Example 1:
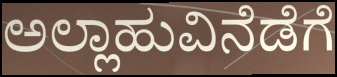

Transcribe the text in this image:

ಅಲ್ಲಾಹುವಿನೆಡೆಗೆ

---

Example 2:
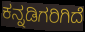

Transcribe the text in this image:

ಕನ್ನಡಿಗರಿಗಿದೆ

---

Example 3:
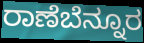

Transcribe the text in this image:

ರಾಣೆಬೆನ್ನೂರ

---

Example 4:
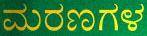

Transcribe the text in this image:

ಮರಣಗಳ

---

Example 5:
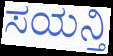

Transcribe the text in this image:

ಸಯನ್ತಿ